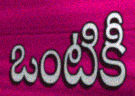
ఒంటికీ